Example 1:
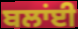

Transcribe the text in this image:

ਬਲਾਂਈ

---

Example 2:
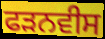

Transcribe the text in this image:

ਫੜਨਵੀਸ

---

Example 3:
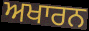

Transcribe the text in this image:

ਅਖਾਰਨ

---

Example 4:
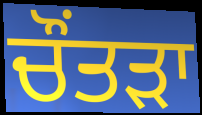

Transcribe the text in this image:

ਚੌਂਤੜਾ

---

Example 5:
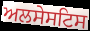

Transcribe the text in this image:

ਅਲਸੇਸਟਿਸ